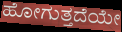
ಹೋಗುತ್ತದೆಯೇ